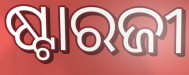
ଷ୍ଟାରଜୀ